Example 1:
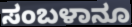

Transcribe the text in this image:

ಸಂಬಳಾನೂ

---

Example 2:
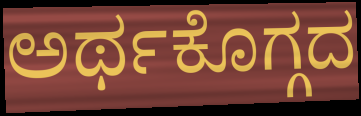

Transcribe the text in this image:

ಅರ್ಥಕೊಗ್ಗದ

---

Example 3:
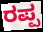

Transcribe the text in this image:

ರಪ್ಪ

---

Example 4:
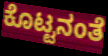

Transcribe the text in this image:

ಕೊಟ್ಟನಂತೆ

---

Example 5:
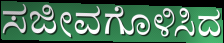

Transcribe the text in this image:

ಸಜೀವಗೊಳಿಸಿದ